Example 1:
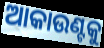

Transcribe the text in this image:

ଆକାଉଣ୍ଟକୁ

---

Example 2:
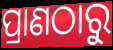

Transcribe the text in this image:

ପ୍ରାଣଠାରୁ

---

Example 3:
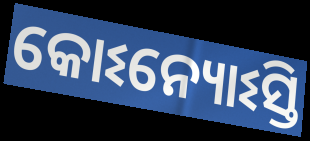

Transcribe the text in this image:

କୋଽନ୍ୟୋଽସ୍ତି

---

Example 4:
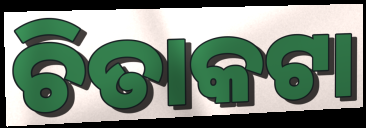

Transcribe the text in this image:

ଚିତାକଟା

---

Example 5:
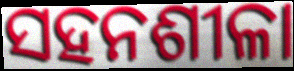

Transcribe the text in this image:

ସହନଶୀଳା